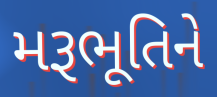
મરૂભૂતિને